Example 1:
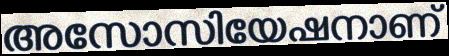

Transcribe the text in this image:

അസോസിയേഷനാണ്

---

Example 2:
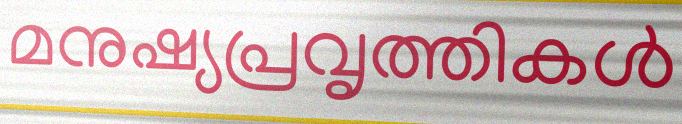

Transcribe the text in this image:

മനുഷ്യപ്രവൃത്തികൾ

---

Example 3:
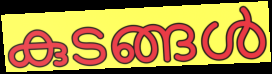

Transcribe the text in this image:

കുടങ്ങൾ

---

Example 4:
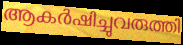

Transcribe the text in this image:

ആകർഷിച്ചുവരുത്തി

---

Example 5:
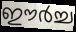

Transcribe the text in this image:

ഈർച്ച